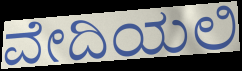
ವೇದಿಯಲಿ